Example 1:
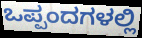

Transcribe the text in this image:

ಒಪ್ಪಂದಗಳಲ್ಲಿ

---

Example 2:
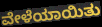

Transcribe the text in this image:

ವೇಳೆಯಾಯಿತು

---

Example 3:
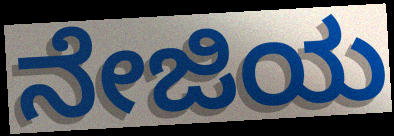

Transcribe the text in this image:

ನೇಜಿಯ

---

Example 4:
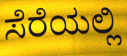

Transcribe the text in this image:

ಸೆರೆಯಲ್ಲಿ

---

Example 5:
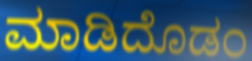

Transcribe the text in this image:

ಮಾಡಿದೊಡಂ